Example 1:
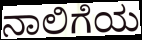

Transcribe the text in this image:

ನಾಲಿಗೆಯ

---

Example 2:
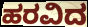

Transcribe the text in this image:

ಹರವಿದ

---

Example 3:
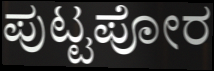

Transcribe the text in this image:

ಪುಟ್ಟಪೋರ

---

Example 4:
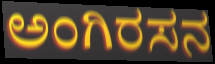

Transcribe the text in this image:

ಅಂಗಿರಸನ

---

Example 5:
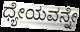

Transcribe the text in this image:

ಧ್ಯೇಯವನ್ನೇ